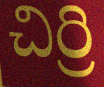
చిర్రి